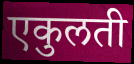
एकुलती